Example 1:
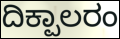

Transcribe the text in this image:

ದಿಕ್ಪಾಲರಂ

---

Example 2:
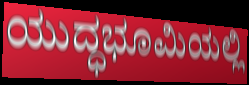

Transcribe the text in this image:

ಯುದ್ಧಭೂಮಿಯಲ್ಲಿ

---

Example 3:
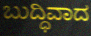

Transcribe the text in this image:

ಬುದ್ಧಿವಾದ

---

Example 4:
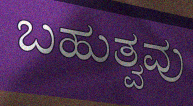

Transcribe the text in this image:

ಬಹುತ್ವವು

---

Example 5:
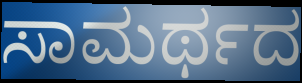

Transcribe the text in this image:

ಸಾಮರ್ಥದ